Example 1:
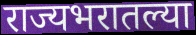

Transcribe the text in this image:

राज्यभरातल्या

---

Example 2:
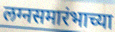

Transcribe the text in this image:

लग्नसमारंभाच्या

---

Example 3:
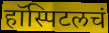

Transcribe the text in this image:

हॉस्पिटलचं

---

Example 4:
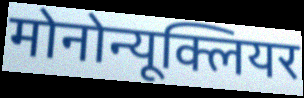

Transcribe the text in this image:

मोनोन्यूक्लियर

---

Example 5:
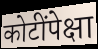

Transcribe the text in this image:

कोटींपेक्षा